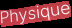
Physique